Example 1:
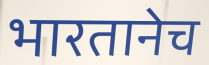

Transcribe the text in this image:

भारतानेच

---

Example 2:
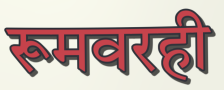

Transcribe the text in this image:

रूमवरही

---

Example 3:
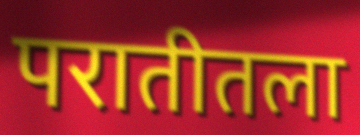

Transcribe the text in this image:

परातीतला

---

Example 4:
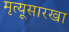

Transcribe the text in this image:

मृत्यूसारखा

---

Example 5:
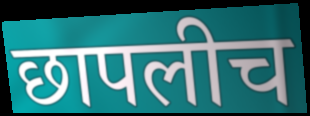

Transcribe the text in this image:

छापलीच